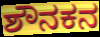
ಶೌನಕನ